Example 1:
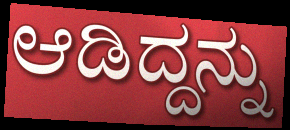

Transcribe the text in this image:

ಆಡಿದ್ದನ್ನು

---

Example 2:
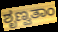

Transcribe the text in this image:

ಶೃಣ್ವತಾಂ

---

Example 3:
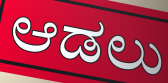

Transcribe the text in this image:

ಆಡಲು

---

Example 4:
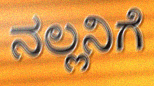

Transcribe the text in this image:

ನಲ್ಲನಿಗೆ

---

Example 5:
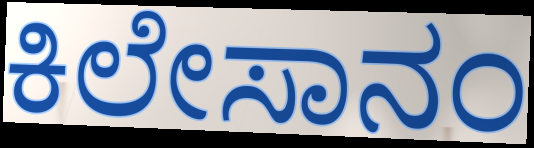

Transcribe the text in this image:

ಕಿಲೇಸಾನಂ